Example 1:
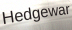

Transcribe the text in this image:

Hedgewar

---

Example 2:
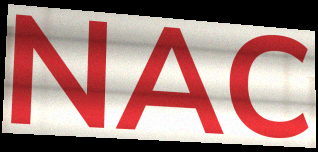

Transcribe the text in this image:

NAC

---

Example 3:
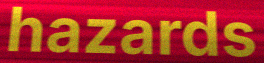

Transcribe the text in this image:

hazards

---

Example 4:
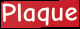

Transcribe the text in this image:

Plaque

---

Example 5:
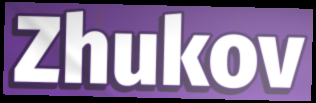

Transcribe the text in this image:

Zhukov